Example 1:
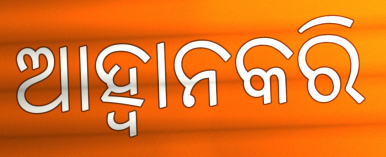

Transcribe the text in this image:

ଆହ୍ୱାନକରି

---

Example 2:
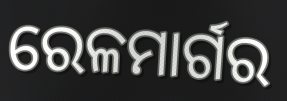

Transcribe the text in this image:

ରେଳମାର୍ଗର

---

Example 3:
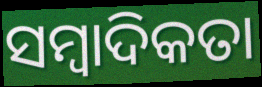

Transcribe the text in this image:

ସମ୍ବାଦିକତା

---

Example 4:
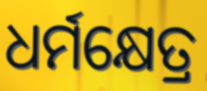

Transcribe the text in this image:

ଧର୍ମକ୍ଷେତ୍ର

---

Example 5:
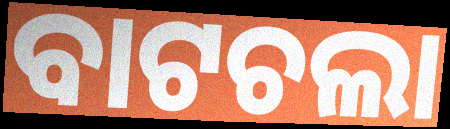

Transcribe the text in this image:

ବାଟଚଲା